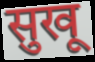
सुखू